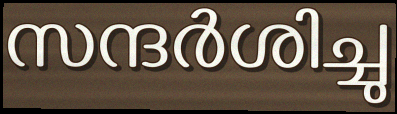
സന്ദർശിച്ചു